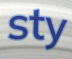
sty